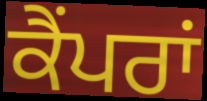
ਕੈਂਪਰਾਂ